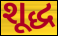
શૂદ્ધ